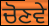
ਚੋਣਵੇ